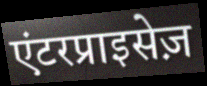
एंटरप्राइसेज़